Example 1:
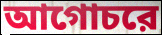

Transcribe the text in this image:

আগোচরে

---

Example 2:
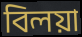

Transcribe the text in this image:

বিলয়া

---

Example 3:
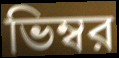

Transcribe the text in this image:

ভিম্বর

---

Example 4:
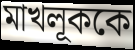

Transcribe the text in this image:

মাখলূককে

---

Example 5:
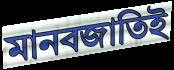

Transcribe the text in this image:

মানবজাতিই